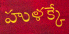
హుళక్కే